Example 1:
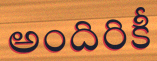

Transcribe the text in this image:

అందిరికీ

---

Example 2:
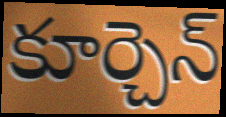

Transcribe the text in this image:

కూర్చెన్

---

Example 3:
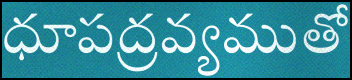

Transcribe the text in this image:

ధూపద్రవ్యముతో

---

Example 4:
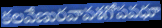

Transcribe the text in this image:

కలవేణురవావశగోపవధూ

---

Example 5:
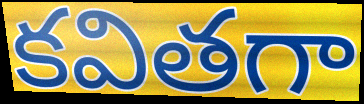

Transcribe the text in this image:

కవితగా